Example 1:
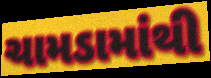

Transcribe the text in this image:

ચામડામાંથી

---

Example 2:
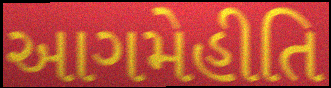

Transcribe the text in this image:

આગમેહીતિ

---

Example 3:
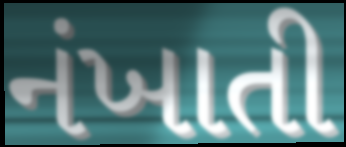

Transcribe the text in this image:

નંખાતી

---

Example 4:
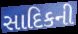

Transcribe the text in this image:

સાદિકની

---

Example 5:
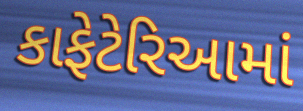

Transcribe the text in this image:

કાફેટેરિઆમાં